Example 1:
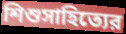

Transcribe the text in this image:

শিশুসাহিত্যের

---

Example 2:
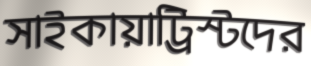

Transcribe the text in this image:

সাইকায়াট্রিস্টদের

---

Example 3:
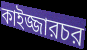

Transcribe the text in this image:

কাইজ্জারচর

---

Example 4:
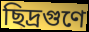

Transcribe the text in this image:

ছিদ্রগুণে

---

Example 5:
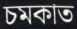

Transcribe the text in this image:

চমকাত